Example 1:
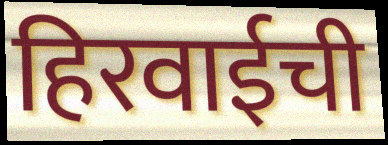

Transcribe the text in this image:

हिरवाईची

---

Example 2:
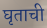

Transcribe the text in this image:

घृताची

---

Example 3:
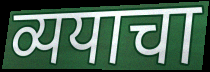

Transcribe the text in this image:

व्ययाचा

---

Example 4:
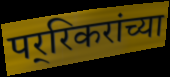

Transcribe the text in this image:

पर्रिकरांच्या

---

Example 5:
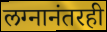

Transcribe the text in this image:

लग्नानंतरही